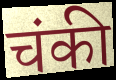
चंकी